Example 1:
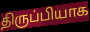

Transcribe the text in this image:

திருப்பியாக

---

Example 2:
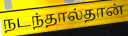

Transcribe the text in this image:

நடந்தால்தான்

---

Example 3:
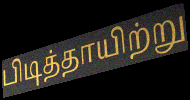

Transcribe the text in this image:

பிடித்தாயிற்று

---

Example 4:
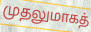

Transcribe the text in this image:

முதலுமாகத்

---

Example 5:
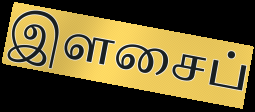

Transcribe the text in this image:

இளசைப்